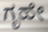
ಗೃಹೇ